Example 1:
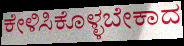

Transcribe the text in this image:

ಕೇಳಿಸಿಕೊಳ್ಳಬೇಕಾದ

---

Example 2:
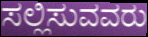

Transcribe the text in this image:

ಸಲ್ಲಿಸುವವರು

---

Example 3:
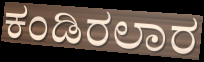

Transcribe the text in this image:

ಕಂಡಿರಲಾರ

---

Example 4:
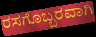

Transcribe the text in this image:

ರಸಗೊಬ್ಬರವಾಗಿ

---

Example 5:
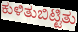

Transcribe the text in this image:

ಕುಳಿತುಬಿಟ್ಟಿತು